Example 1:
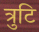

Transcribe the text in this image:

त्रुटि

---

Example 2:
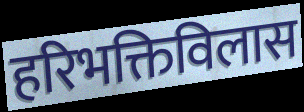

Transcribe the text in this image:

हरिभक्तिविलास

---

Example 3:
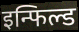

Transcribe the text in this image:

इन्फिल्ड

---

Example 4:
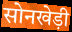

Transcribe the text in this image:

सोनखेड़ी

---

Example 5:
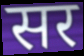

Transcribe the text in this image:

सर